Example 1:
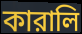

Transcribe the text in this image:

কারালি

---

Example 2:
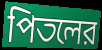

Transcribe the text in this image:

পিতলের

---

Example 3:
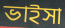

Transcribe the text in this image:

ভাইসা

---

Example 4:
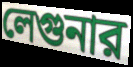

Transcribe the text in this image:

লেগুনার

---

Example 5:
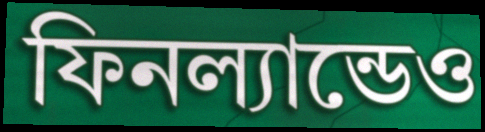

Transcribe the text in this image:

ফিনল্যান্ডেও